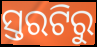
ସ୍ତରଟିରୁ